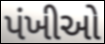
પંખીઓ